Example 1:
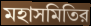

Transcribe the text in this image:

মহাসমিতির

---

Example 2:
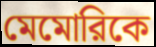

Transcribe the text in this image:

মেমোরিকে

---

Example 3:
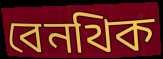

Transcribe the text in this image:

বেনথিক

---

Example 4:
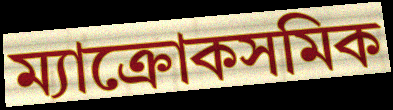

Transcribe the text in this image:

ম্যাক্রোকসমিক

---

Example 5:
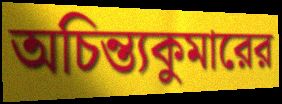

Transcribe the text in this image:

অচিন্ত্যকুমারের